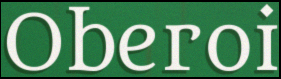
Oberoi